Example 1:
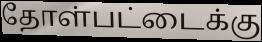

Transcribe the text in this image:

தோள்பட்டைக்கு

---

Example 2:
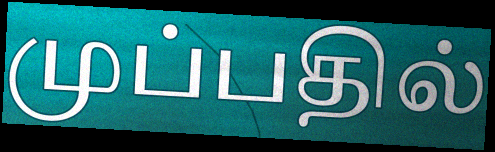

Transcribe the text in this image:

முப்பதில்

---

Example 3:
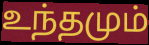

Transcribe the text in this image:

உந்தமும்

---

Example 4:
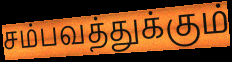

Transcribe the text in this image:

சம்பவத்துக்கும்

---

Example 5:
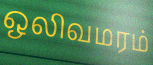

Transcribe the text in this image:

ஒலிவமரம்